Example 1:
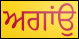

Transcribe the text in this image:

ਅਗਾਂਉ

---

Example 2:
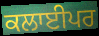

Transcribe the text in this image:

ਕਲਾਈਪਰ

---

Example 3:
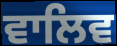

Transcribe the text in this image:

ਵਾਲਿਵ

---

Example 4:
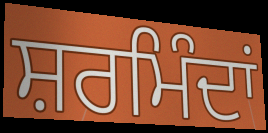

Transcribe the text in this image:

ਸ਼ਰਮਿੰਦਾਂ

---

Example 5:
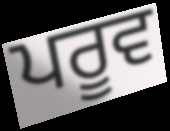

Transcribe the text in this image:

ਪਰੂਵ